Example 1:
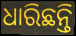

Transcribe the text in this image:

ଧାରିଛନ୍ତି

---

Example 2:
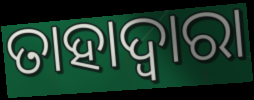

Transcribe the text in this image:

ତାହାଦ୍ୱାରା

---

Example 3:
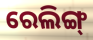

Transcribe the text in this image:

ରେଲିଙ୍ଗ୍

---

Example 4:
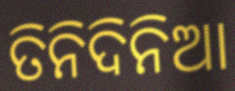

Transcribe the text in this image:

ତିନିଦିନିଆ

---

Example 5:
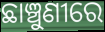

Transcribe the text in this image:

ଛାଞ୍ଚୁଣୀରେ